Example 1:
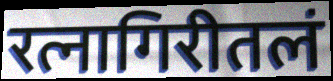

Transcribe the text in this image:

रत्नागिरीतलं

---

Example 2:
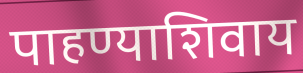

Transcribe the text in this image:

पाहण्याशिवाय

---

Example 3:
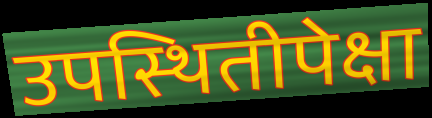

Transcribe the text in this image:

उपस्थितीपेक्षा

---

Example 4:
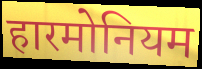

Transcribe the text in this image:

हारमोनियम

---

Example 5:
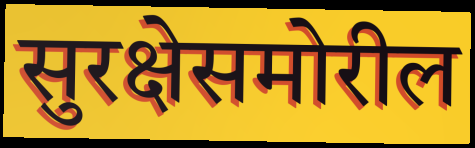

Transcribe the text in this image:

सुरक्षेसमोरील